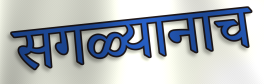
सगळ्यानाच